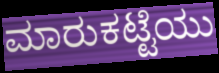
ಮಾರುಕಟ್ಟೆಯು